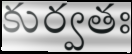
కుర్వతః